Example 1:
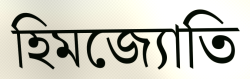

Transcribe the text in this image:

হিমজ্যোতি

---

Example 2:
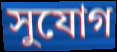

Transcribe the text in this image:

সুযোগ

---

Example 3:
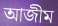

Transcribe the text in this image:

আজীম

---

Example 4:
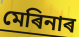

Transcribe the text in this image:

মেৰিনাৰ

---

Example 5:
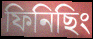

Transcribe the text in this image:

ফিনিছিং